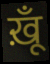
ख़ूँ